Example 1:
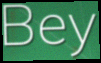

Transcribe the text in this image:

Bey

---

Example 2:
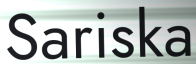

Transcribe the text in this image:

Sariska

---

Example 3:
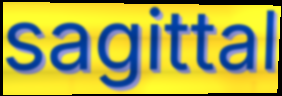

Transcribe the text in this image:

sagittal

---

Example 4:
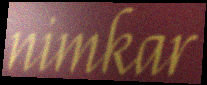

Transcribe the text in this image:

nimkar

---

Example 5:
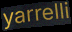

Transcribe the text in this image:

yarrelli